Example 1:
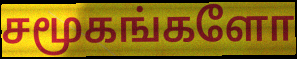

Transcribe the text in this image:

சமூகங்களோ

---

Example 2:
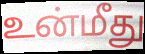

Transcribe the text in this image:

உன்மீது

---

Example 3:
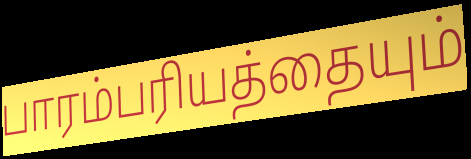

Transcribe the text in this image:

பாரம்பரியத்தையும்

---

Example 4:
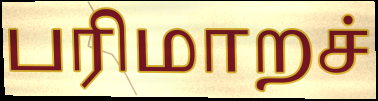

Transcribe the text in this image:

பரிமாறச்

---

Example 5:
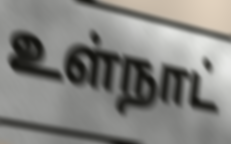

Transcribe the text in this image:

உள்நாட்